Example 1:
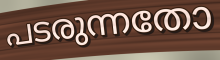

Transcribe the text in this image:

പടരുന്നതോ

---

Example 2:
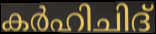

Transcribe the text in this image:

കർഹിചിദ്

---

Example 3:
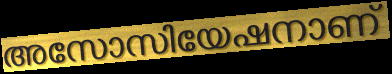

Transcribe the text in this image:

അസോസിയേഷനാണ്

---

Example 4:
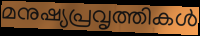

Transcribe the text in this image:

മനുഷ്യപ്രവൃത്തികൾ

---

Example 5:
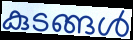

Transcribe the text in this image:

കുടങ്ങൾ